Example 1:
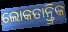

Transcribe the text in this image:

ଲୋକତାନ୍ତ୍ରିକ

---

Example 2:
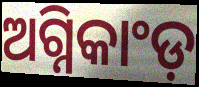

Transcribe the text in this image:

ଅଗ୍ନିକାଂଡ଼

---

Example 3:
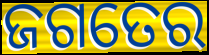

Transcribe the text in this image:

ଜଗତେର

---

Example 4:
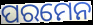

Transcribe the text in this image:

ପରମେନ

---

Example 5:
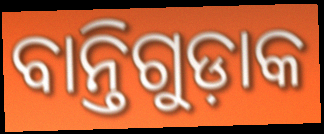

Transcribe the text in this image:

ବାନ୍ତିଗୁଡ଼ାକ